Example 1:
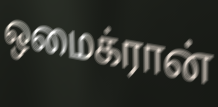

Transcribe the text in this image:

ஒமைக்ரான்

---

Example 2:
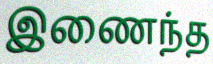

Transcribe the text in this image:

இணைந்த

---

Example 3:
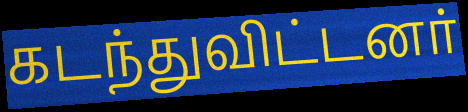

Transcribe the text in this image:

கடந்துவிட்டனர்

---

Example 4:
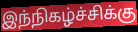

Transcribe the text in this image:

இந்நிகழ்ச்சிக்கு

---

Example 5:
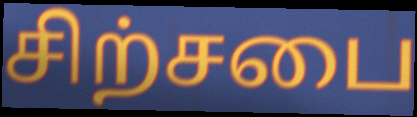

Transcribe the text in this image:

சிற்சபை